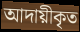
আদায়ীকৃত